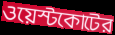
ওয়েস্টকোটের